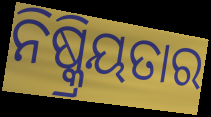
ନିଷ୍କ୍ରିୟତାର